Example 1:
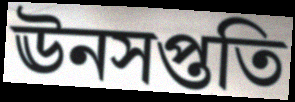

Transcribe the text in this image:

ঊনসপ্ততি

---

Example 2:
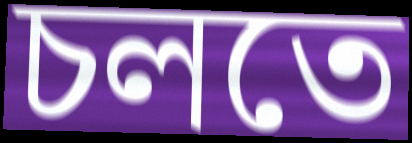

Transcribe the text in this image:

চলতে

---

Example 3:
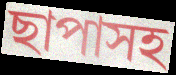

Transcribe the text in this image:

ছাপাসহ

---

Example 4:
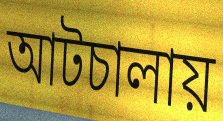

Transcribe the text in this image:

আটচালায়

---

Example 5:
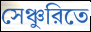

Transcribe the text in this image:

সেঞ্চুরিতে